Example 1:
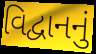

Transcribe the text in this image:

વિદ્વાનનું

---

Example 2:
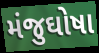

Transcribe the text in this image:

મંજુઘોષા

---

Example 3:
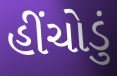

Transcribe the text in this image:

હીંચોડું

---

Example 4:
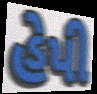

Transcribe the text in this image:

હેપી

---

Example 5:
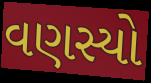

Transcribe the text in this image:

વણસ્યો